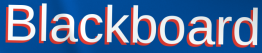
Blackboard